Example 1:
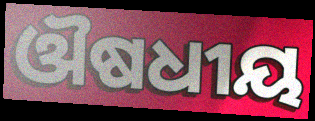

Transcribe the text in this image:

ଔଷଧୀୟ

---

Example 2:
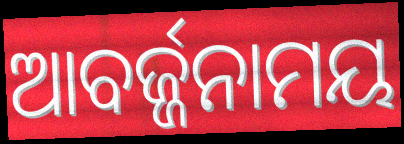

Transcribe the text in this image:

ଆବର୍ଜ୍ଜନାମୟ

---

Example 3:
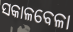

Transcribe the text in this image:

ସକାଳବେଳା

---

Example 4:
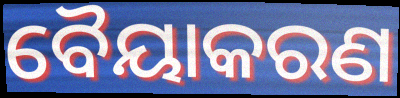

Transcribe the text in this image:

ବୈୟାକରଣ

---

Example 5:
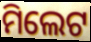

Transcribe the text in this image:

ମିଲେଟ